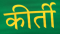
कीर्ती